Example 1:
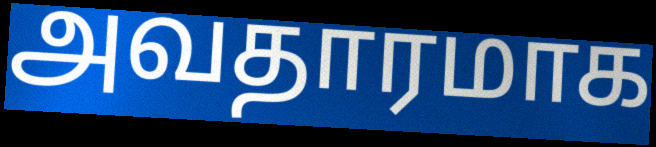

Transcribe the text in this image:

அவதாரமாக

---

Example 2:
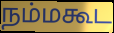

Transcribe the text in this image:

நம்மகூட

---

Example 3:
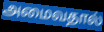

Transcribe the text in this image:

அமைவதால்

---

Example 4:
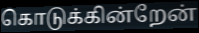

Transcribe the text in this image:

கொடுக்கின்றேன்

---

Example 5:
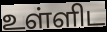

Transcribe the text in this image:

உள்ளிட